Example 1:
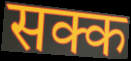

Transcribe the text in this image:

सक्क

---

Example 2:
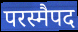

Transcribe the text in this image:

परस्मैपद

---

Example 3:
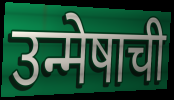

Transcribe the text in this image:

उन्मेषाची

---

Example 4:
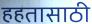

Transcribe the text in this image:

हहतासाठी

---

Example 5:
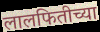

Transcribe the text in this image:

लालफितीच्या